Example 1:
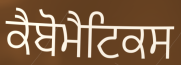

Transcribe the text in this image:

ਕੈਬੋਮੈਟਿਕਸ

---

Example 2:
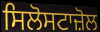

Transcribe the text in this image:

ਸਿਲੋਸਟਾਜ਼ੋਲ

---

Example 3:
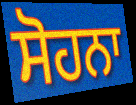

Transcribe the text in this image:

ਸੋਹਨਾ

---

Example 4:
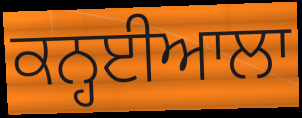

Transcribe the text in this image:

ਕਨ੍ਹਈਆਲਾ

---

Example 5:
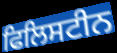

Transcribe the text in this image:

ਫਿਲਿਸਟੀਨ